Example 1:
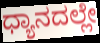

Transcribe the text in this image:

ಧ್ಯಾನದಲ್ಲೇ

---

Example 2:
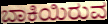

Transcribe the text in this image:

ಬಾಕಿಯಿರುವ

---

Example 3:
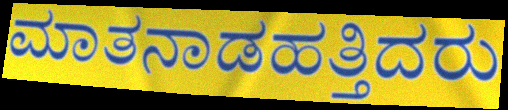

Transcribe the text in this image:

ಮಾತನಾಡಹತ್ತಿದರು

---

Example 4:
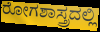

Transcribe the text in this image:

ರೋಗಶಾಸ್ತ್ರದಲ್ಲಿ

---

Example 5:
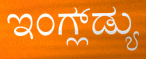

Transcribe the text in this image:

ಇಂಗ್ಲ್‌ಡ್ಯು